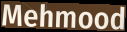
Mehmood